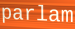
parlam